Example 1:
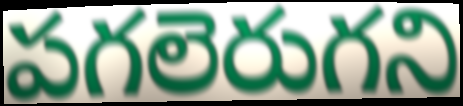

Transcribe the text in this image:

పగలెరుగని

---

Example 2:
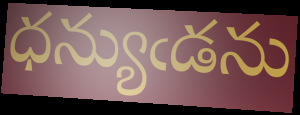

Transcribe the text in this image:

ధన్యుఁడను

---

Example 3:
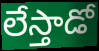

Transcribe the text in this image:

లేస్తాడో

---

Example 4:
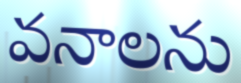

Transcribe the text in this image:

వనాలను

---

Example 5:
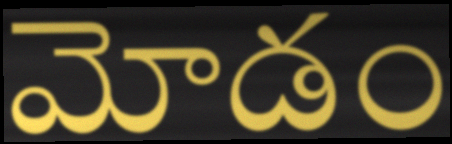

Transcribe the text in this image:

మోడం